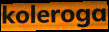
koleroga